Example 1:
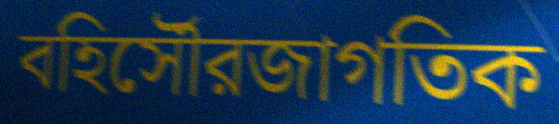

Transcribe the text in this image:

বহির্সৌরজাগতিক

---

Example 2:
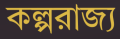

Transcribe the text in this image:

কল্পরাজ্য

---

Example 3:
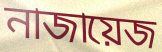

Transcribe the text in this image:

নাজায়েজ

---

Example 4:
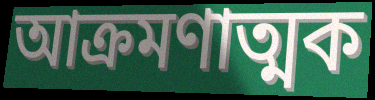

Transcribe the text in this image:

আক্রমণাত্মক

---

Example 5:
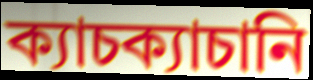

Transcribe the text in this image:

ক্যাচক্যাচানি